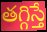
తగ్గిస్తే